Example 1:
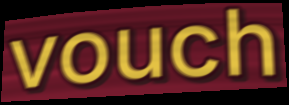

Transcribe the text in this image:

vouch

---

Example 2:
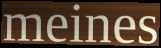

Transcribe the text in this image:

meines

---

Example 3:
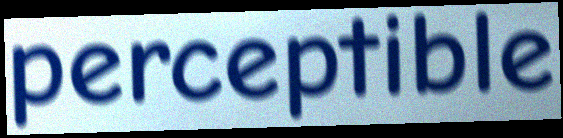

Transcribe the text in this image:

perceptible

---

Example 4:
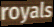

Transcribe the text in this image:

royals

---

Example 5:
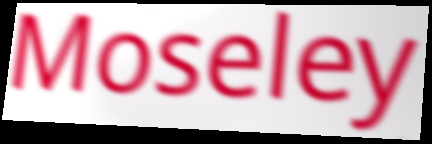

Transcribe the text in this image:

Moseley